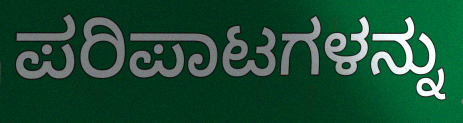
ಪರಿಪಾಟಗಳನ್ನು